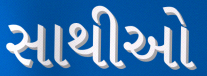
સાથીઓ